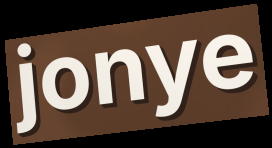
jonye